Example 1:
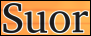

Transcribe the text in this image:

Suor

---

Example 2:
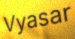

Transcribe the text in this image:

Vyasar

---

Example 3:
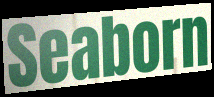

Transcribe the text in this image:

Seaborn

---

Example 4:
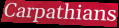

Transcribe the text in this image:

Carpathians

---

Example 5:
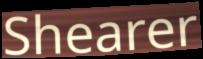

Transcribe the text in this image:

Shearer